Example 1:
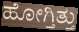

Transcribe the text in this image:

ಹೋಗ್ತಿತ್ತು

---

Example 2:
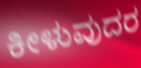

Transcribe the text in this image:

ಕೀಳುವುದರ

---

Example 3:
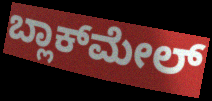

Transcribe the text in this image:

ಬ್ಲಾಕ್‌ಮೇಲ್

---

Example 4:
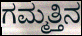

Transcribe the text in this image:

ಗಮ್ಮತ್ತಿನ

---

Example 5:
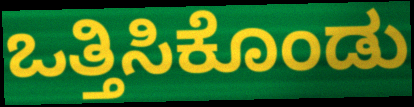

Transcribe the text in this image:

ಒತ್ತಿಸಿಕೊಂಡು